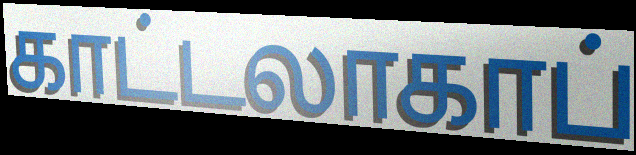
காட்டலாகாப்